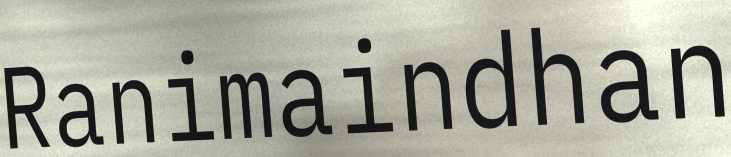
Ranimaindhan